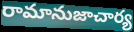
రామానుజాచార్య